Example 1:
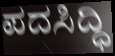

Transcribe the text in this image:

ಪದಸಿದ್ಧಿ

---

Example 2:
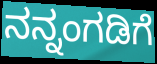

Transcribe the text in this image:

ನನ್ನಂಗಡಿಗೆ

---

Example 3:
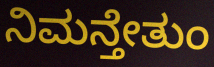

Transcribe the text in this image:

ನಿಮನ್ತೇತುಂ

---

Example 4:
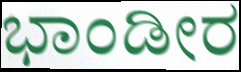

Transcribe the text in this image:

ಭಾಂಡೀರ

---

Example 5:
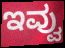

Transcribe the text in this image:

ಇವ್ವು